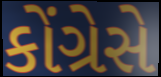
કોંગ્રેસે